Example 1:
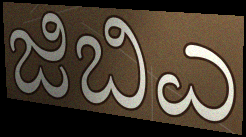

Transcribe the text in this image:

ಜಿಬಿಎ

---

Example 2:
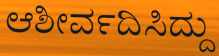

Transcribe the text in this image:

ಆಶೀರ್ವದಿಸಿದ್ದು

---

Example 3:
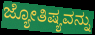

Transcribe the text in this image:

ಜ್ಯೋತಿಷ್ಯವನ್ನು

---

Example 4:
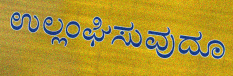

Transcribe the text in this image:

ಉಲ್ಲಂಘಿಸುವುದೂ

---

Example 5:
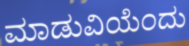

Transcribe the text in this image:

ಮಾಡುವಿಯೆಂದು